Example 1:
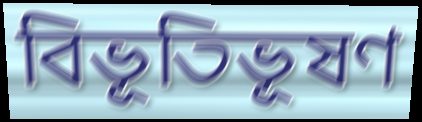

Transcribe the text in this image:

বিভূতিভূষণ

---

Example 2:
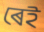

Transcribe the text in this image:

ৰেই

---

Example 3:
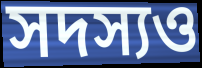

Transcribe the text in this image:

সদস্যও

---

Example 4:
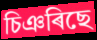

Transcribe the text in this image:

চিঞৰিছে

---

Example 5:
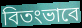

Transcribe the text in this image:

বিতংভাবে